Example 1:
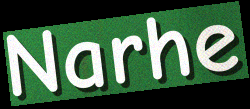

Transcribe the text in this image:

Narhe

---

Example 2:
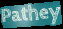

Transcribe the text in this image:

Pathey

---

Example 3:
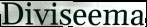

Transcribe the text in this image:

Diviseema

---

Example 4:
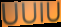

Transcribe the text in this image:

UUIU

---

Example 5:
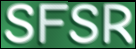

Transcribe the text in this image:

SFSR